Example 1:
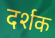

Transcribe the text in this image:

दर्शक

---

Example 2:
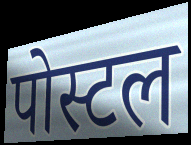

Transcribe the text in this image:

पोस्टल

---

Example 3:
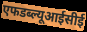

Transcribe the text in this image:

एफडब्ल्यूआईसीई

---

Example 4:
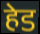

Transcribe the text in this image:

हेड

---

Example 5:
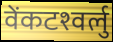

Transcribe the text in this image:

वेंकटश्वर्लु